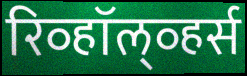
रिव्हॉल्व्हर्स